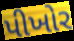
પીખોર